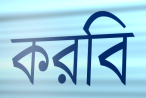
করবি